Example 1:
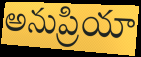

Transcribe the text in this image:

అనుప్రియా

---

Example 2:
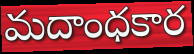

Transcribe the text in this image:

మదాంధకార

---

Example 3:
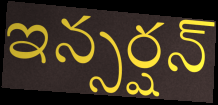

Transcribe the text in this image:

ఇన్సర్షన్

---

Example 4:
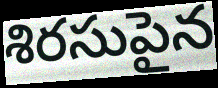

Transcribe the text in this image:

శిరసుపైన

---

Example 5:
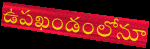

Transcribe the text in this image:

ఉపఖండంలోనూ